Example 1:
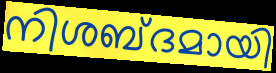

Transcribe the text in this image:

നിശബ്ദമായി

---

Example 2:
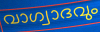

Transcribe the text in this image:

വാഗ്വാദവും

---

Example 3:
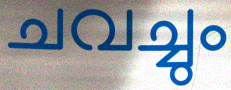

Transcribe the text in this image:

ചവച്ചും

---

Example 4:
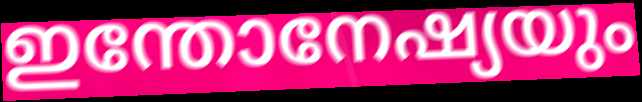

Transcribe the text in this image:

ഇന്തോനേഷ്യയും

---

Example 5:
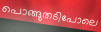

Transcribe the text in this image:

പൊങ്ങുതടിപോലെ